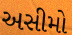
અસીમો